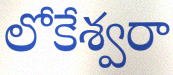
లోకేశ్వరా